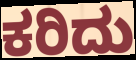
ಕರಿದು